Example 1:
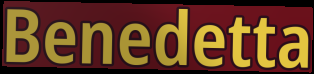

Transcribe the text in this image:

Benedetta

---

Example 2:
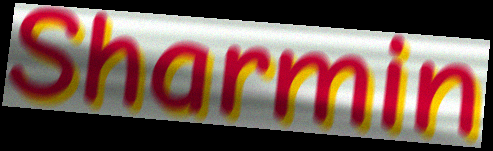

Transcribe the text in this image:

Sharmin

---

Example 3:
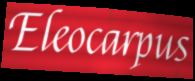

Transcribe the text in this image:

Eleocarpus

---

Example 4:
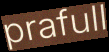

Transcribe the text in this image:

prafull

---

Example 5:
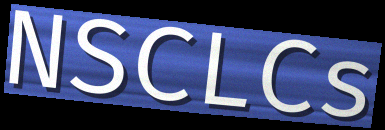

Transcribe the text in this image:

NSCLCs